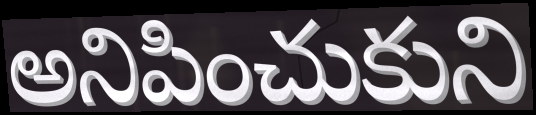
అనిపించుకుని